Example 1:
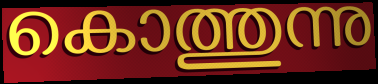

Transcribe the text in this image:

കൊത്തുന്നു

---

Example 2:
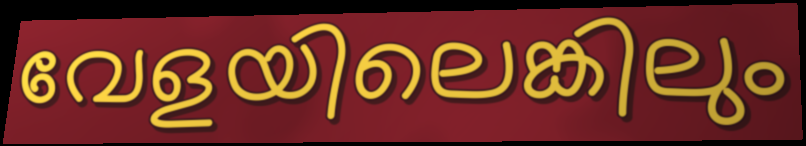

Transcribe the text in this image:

വേളയിലെങ്കിലും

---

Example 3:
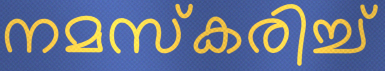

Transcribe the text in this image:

നമസ്കരിച്ച്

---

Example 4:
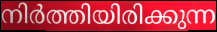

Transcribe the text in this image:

നിർത്തിയിരിക്കുന്ന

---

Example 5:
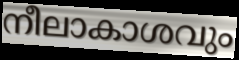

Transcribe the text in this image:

നീലാകാശവും